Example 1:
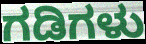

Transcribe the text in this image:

ಗಡಿಗಳು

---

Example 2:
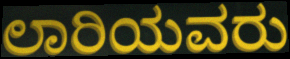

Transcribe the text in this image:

ಲಾರಿಯವರು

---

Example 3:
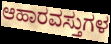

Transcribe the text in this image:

ಆಹಾರವಸ್ತುಗಳ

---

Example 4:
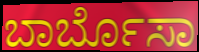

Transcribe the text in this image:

ಬಾರ್ಬೊಸಾ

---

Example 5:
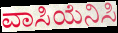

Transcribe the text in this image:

ವಾಸಿಯೆನಿಸಿ